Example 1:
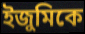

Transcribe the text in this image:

ইজুমিকে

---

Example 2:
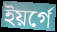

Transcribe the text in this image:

ইয়র্গে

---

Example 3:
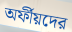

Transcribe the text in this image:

অর্ফীয়দের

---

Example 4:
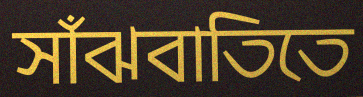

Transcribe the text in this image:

সাঁঝবাতিতে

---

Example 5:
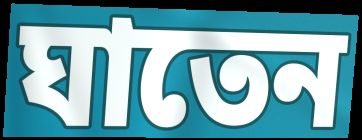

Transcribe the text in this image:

ঘাতেন